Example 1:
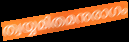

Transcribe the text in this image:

ത്വയ്യമിതമനുരാഗം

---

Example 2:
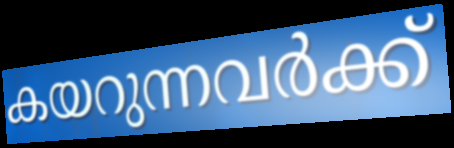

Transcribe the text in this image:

കയറുന്നവർക്ക്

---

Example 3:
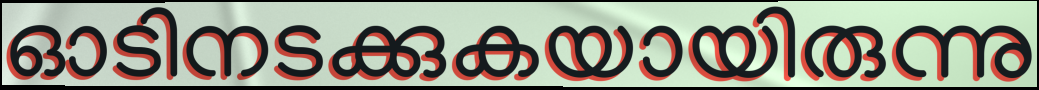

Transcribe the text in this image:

ഓടിനടക്കുകയായിരുന്നു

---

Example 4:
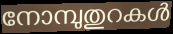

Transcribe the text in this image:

നോമ്പുതുറകൾ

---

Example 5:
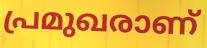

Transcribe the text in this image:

പ്രമുഖരാണ്